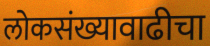
लोकसंख्यावाढीचा